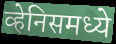
व्हेनिसमध्ये